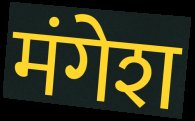
मंगेश